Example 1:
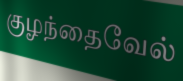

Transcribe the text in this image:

குழந்தைவேல்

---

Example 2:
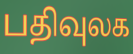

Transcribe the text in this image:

பதிவுலக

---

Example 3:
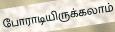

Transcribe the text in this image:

போராடியிருக்கலாம்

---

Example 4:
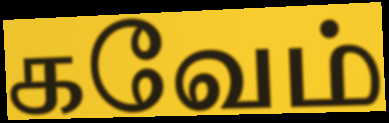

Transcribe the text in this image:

கவேம்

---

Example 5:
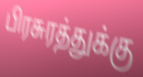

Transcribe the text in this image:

பிரசுரத்துக்கு